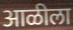
आळीला